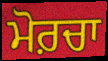
ਮੋਰ਼ਚਾ